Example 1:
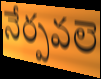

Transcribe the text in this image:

నేర్పవలె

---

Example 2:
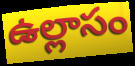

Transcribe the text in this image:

ఉల్లాసం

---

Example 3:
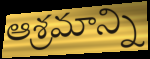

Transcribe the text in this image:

ఆశ్రమాన్ని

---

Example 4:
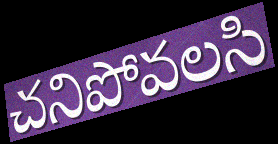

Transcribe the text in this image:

చనిపోవలసి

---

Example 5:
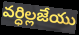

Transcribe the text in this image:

వర్ధిల్లజేయు